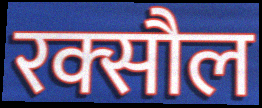
रक्‍सौल